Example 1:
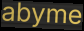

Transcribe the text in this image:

abyme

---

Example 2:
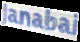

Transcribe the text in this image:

Janabai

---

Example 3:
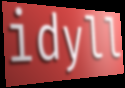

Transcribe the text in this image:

idyll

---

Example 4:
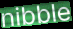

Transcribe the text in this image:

nibble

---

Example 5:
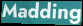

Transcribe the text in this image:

Madding